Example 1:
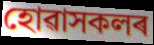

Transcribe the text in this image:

হোৱাসকলৰ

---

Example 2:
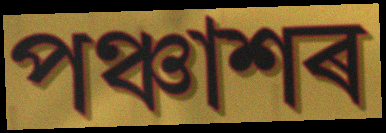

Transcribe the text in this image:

পঞ্চাশৰ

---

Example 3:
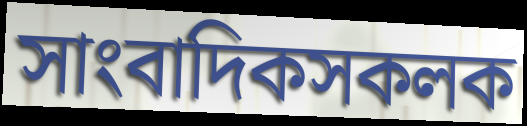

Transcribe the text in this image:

সাংবাদিকসকলক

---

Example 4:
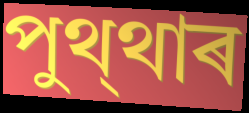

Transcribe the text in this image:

পুথ্থাৰ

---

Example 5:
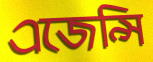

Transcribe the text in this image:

এজেন্সি